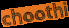
choothi